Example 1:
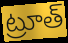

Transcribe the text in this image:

ట్రూత్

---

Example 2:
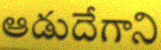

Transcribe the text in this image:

ఆడుదేగాని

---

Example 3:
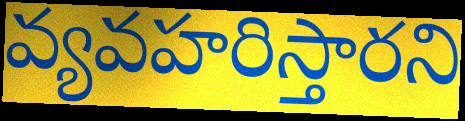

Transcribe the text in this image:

వ్యవహరిస్తారని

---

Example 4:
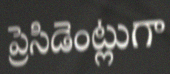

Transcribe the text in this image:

ప్రెసిడెంట్లుగా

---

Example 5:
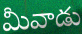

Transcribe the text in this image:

మీవాడు